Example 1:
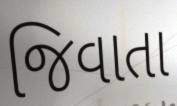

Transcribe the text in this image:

જિવાતા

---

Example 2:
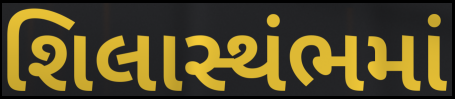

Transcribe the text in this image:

શિલાસ્થંભમાં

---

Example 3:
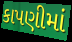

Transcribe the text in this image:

કાપણીમાં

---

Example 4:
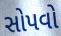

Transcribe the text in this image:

સોપવો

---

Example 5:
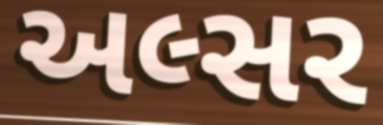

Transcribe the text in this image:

અલ્સર